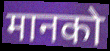
मानको